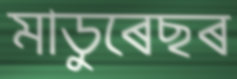
মাডুৰেছৰ